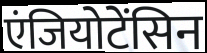
एंजियोटेंसिन